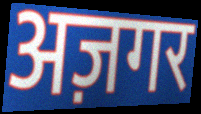
अज़गर